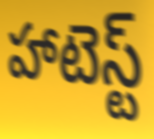
హాటెస్ట్